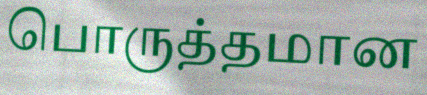
பொருத்தமான